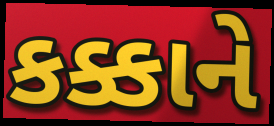
કક્કાને